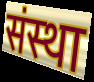
संस्था